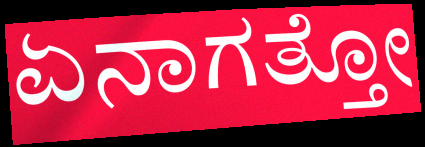
ಏನಾಗತ್ತೋ